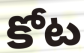
కోట